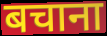
बचाना